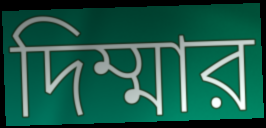
দিম্মার